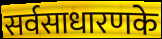
सर्वसाधारणके